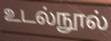
உடல்நூல்